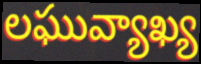
లఘువ్యాఖ్య